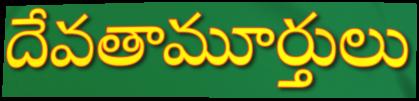
దేవతామూర్తులు